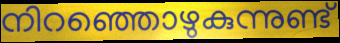
നിറഞ്ഞൊഴുകുന്നുണ്ട്